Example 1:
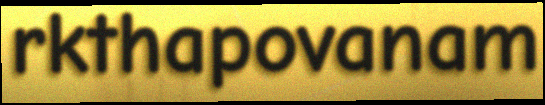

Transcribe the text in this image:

rkthapovanam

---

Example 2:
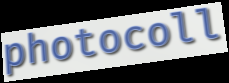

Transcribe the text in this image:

photocoll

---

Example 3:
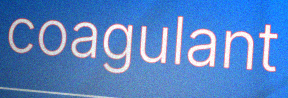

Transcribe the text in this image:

coagulant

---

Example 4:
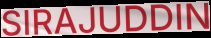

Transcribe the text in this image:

SIRAJUDDIN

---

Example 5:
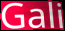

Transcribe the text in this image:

Gali